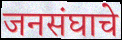
जनसंघाचे